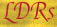
LDRs